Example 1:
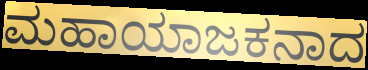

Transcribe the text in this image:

ಮಹಾಯಾಜಕನಾದ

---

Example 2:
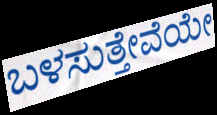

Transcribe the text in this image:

ಬಳಸುತ್ತೇವೆಯೇ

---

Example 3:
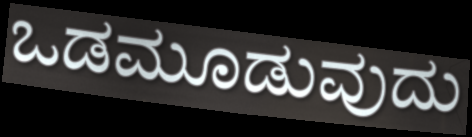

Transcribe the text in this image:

ಒಡಮೂಡುವುದು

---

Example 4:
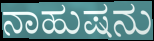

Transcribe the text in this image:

ನಾಹುಷನು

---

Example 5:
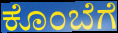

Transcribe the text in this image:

ಕೊಂಬೆಗೆ